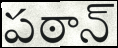
పఠాన్